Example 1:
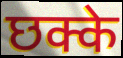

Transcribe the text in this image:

छक्के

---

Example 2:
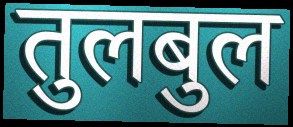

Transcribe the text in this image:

तुलबुल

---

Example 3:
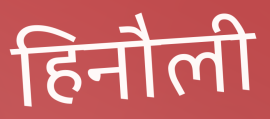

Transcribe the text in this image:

हिनौली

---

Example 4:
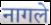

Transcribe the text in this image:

नागले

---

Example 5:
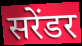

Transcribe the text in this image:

सरेंडर